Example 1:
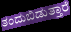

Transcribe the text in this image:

ತಂದುಬಿಡುತ್ತಾರೆ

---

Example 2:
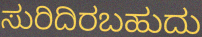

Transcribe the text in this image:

ಸುರಿದಿರಬಹುದು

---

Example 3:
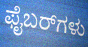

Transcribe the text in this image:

ಫೈಬರ್‌ಗಳು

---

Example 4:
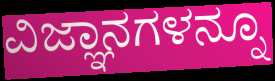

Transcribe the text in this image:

ವಿಜ್ಞಾನಗಳನ್ನೂ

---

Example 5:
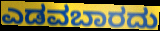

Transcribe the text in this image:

ಎಡವಬಾರದು